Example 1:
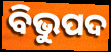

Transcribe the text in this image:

ବିଭୁପଦ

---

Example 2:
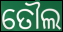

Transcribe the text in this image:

ତୌଲ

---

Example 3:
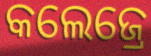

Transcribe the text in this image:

କଲେଜ୍ରେ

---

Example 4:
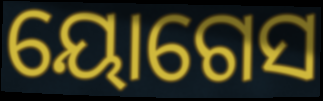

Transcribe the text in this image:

ୟୋଗେସ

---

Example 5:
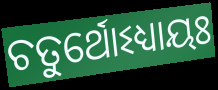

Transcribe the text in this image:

ଚତୁର୍ଥୋଽଧ୍ୟାୟଃ